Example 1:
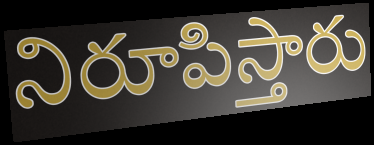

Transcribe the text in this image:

నిరూపిస్తారు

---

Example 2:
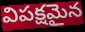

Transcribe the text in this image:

విపక్షమైన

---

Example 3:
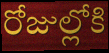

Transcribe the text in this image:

రోజుల్లోకి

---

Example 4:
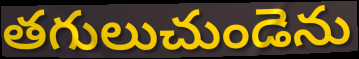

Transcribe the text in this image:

తగులుచుండెను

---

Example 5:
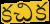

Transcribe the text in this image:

కచిక